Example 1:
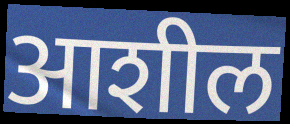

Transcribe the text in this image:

आशील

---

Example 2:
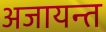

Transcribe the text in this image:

अजायन्त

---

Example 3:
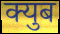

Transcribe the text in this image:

क्युब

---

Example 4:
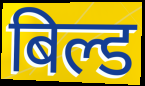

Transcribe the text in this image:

बिल्ड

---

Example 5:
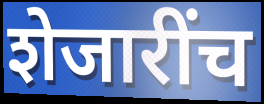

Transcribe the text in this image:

शेजारींच